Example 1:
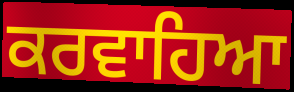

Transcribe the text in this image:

ਕਰਵਾਹਿਆ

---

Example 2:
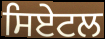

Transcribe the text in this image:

ਸਿਏਟਲ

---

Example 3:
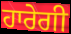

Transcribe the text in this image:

ਹਾਰੇਗੀ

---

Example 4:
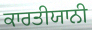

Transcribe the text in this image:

ਕਾਰਤੀਯਾਨੀ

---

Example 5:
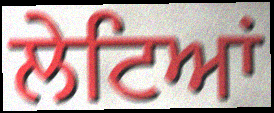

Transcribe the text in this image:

ਲੇਟਿਆਂ